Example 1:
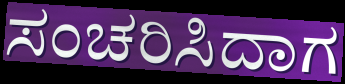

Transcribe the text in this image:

ಸಂಚರಿಸಿದಾಗ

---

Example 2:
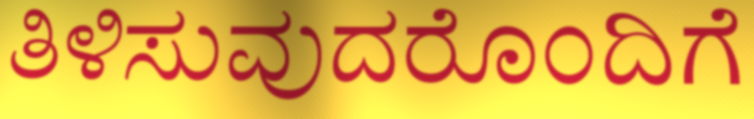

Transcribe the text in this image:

ತಿಳಿಸುವುದರೊಂದಿಗೆ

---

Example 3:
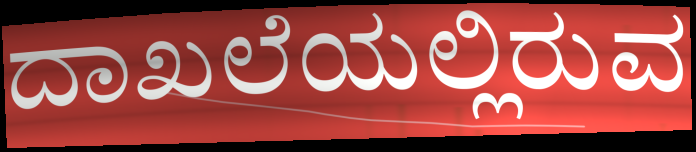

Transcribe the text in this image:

ದಾಖಲೆಯಲ್ಲಿರುವ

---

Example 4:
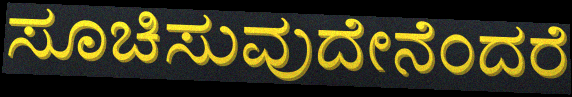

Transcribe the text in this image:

ಸೂಚಿಸುವುದೇನೆಂದರೆ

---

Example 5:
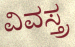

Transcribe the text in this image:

ವಿವಸ್ತ್ರ